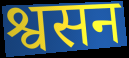
श्वसन